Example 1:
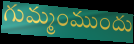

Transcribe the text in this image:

గుమ్మంముందు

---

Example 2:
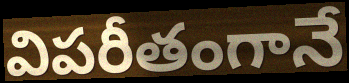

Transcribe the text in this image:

విపరీతంగానే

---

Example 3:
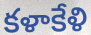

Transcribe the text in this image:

కళాకేళి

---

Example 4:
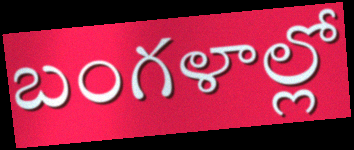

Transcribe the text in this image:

బంగళాల్లో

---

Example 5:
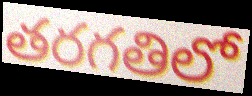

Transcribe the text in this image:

తరగతిలో